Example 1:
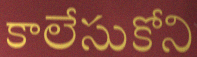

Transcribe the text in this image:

కాలేసుకోని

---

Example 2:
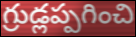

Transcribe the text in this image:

గ్రుడ్లప్పగించి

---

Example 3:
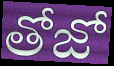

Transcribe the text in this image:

తోజో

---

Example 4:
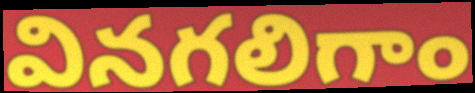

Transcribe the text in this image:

వినగలిగాం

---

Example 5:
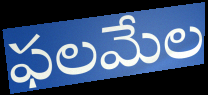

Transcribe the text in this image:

ఫలమేల